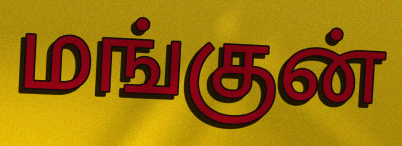
மங்குன்